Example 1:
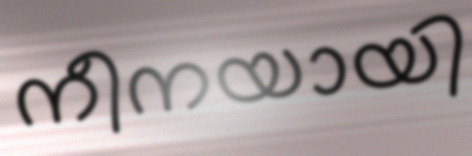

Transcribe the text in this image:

നീനയായി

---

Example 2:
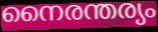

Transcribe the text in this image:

നൈരന്തര്യം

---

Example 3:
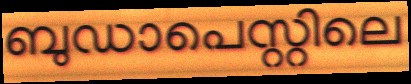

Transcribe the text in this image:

ബുഡാപെസ്റ്റിലെ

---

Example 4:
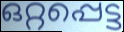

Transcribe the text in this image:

ഒറ്റപ്പെട്ട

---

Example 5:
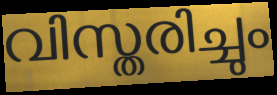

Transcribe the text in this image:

വിസ്തരിച്ചും